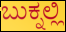
ಬುಕ್ನಲ್ಲಿ